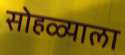
सोहळ्याला